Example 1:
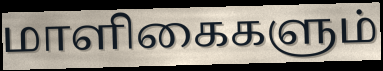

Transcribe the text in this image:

மாளிகைகளும்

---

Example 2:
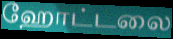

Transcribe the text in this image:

ஹோட்டலை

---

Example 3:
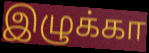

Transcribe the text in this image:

இழுக்கா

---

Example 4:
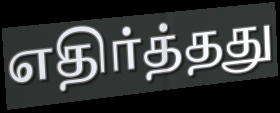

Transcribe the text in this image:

எதிர்த்தது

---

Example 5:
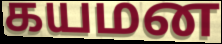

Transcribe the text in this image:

கயமன